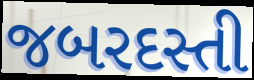
જબરદસ્તી